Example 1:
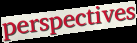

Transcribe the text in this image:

perspectives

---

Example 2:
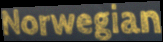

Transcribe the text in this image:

Norwegian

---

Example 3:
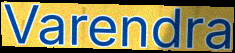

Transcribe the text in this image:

Varendra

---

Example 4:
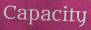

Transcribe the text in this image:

Capacity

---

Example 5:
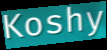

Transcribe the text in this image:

Koshy